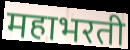
महाभरती